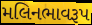
મલિનભાવરૂપ